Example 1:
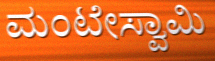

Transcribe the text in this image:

ಮಂಟೇಸ್ವಾಮಿ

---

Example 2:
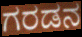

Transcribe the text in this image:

ಗರಡನ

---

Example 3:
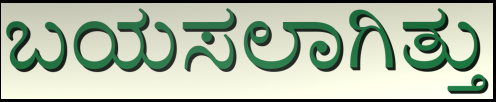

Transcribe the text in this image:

ಬಯಸಲಾಗಿತ್ತು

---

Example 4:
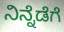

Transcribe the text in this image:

ನಿನ್ನೆಡೆಗೆ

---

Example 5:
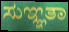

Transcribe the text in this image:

ಸುಞ್ಞತಾ